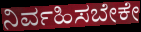
ನಿರ್ವಹಿಸಬೇಕೇ